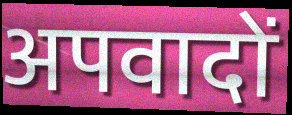
अपवादों